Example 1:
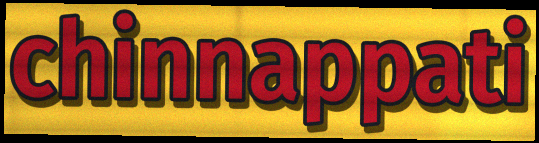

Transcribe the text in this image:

chinnappati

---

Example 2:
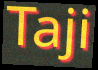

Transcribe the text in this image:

Taji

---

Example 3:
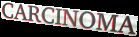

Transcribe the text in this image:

CARCINOMA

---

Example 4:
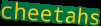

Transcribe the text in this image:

cheetahs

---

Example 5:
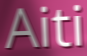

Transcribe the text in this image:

Aiti